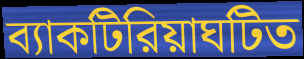
ব্যাকটিরিয়াঘটিত